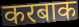
करबाक